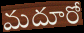
మదూరో